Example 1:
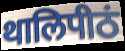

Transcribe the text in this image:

थालिपीठं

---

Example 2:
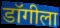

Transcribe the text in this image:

डॉगीला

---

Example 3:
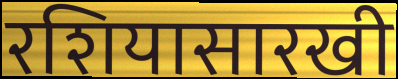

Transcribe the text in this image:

रशियासारखी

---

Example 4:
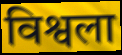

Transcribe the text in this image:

विश्वला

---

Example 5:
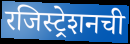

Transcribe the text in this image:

रजिस्ट्रेशनची